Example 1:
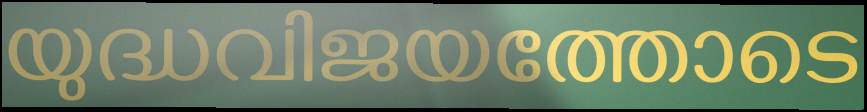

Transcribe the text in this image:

യുദ്ധവിജയത്തോടെ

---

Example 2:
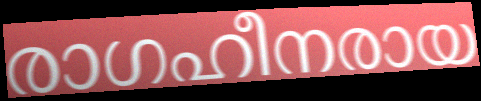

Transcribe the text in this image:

രാഗഹീനരായ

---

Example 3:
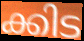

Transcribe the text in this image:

ക്കിട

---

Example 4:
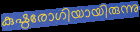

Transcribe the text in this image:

കുഷ്ഠരോഗിയായിരുന്നു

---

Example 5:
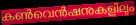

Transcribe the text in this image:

കൺവെൻഷനുകളിലും